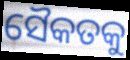
ସୈକତକୁ